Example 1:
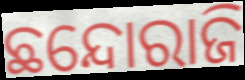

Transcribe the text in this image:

ଛନ୍ଦୋରାଜି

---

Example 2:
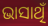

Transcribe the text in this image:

ଭାସାଥିଁ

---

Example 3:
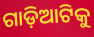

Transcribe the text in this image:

ଗାଡ଼ିଆଟିକୁ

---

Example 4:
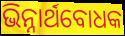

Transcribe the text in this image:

ଭିନ୍ନାର୍ଥବୋଧକ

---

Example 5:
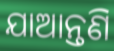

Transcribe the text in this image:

ଯାଆନ୍ତଣି